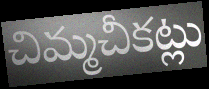
చిమ్మచీకట్లు